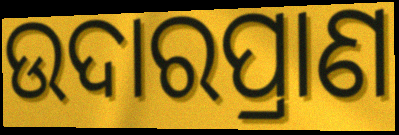
ଉଦାରପ୍ରାଣ